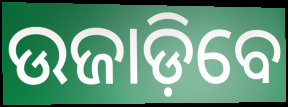
ଉଜାଡ଼ିବେ